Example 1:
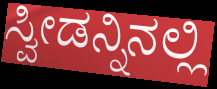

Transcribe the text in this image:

ಸ್ವೀಡನ್ನಿನಲ್ಲಿ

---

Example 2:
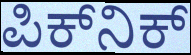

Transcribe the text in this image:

ಪಿಕ್‌ನಿಕ್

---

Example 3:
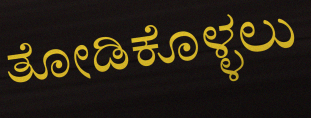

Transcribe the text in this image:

ತೋಡಿಕೊಳ್ಳಲು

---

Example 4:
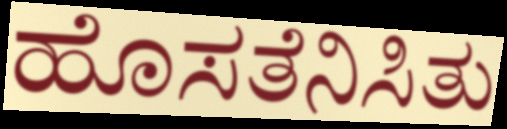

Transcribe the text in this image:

ಹೊಸತೆನಿಸಿತು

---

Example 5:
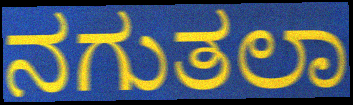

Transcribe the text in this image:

ನಗುತಲಾ